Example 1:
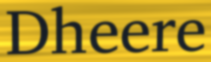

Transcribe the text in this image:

Dheere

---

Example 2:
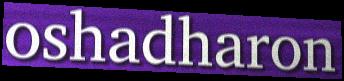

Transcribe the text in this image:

oshadharon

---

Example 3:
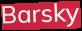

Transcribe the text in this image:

Barsky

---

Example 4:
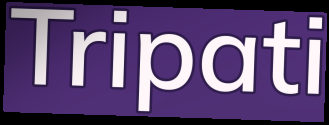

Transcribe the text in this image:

Tripati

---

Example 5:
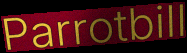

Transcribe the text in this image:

Parrotbill